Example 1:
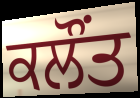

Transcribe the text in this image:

ਕਲੌਂਤ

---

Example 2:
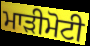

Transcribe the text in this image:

ਮਾੜੀਮੋਟੀ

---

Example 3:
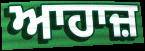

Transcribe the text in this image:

ਆਹਾਜ਼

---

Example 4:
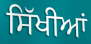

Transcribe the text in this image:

ਸਿੱਖੀਆਂ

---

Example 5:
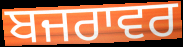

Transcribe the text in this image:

ਬਜਰਾਵਰ